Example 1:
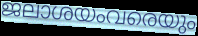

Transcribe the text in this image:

ജലാശയംവരെയും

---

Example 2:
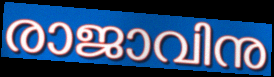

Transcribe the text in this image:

രാജാവിനു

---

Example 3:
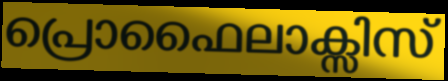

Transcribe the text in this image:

പ്രൊഫൈലാക്സിസ്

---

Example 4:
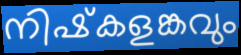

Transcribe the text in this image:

നിഷ്‌കളങ്കവും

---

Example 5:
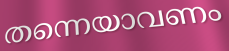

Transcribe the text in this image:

തന്നെയാവണം